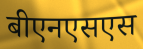
बीएनएसएस